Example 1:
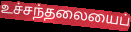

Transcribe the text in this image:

உச்சந்தலையைப்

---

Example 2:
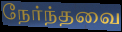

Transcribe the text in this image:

நேர்ந்தவை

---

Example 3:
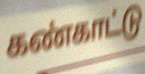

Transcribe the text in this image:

கண்காட்டு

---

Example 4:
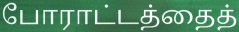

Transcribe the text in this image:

போராட்டத்தைத்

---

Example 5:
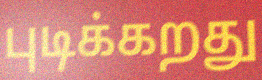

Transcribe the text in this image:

புடிக்கறது